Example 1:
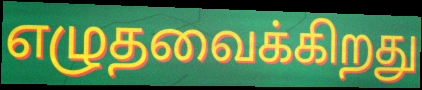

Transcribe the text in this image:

எழுதவைக்கிறது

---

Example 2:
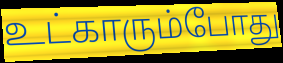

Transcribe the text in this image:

உட்காரும்போது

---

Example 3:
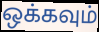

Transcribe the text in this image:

ஒக்கவும்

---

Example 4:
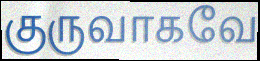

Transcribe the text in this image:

குருவாகவே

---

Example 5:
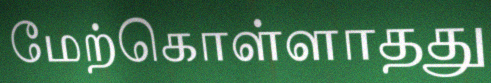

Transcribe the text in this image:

மேற்கொள்ளாதது